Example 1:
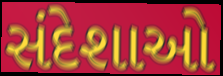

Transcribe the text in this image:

સંદેશાઓ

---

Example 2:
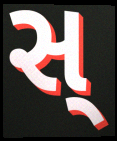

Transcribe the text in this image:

સ્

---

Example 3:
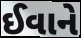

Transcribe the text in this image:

ઈવાને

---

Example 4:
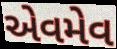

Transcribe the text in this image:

એવમેવ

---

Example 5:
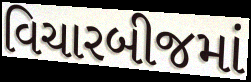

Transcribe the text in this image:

વિચારબીજમાં